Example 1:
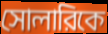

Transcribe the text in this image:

সোলারিকে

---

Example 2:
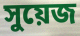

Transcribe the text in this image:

সুয়েজ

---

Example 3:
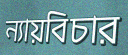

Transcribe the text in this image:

ন্যায়বিচার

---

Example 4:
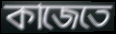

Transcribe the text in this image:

কাজেতে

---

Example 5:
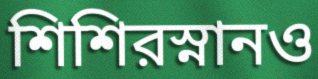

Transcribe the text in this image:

শিশিরস্নানও